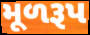
મૂળરૂપ